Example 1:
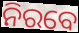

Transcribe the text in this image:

ନିରବେ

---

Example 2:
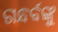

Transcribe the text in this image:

ଗନ୍ଧର୍ବଙ୍କୁ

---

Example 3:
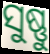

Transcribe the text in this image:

ସୁଷ୍ଣୁ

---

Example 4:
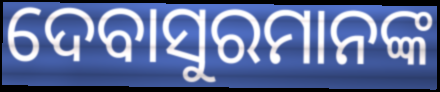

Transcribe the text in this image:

ଦେବାସୁରମାନଙ୍କ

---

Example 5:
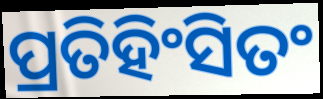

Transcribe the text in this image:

ପ୍ରତିହିଂସିତଂ